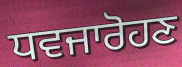
ਧਵਜਾਰੋਹਣ